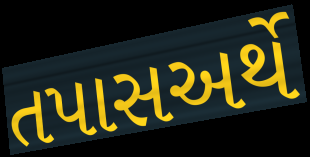
તપાસઅર્થે